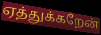
ஏத்துக்கறேன்